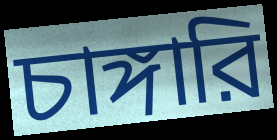
চাঙ্গারি